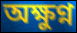
অক্ষুণ্ন